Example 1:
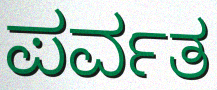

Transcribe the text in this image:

ಪರ್ವತ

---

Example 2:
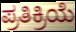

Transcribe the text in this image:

ಪ್ರತಿಕ್ರಿಯೆ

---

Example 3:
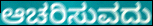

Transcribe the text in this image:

ಆಚರಿಸುವದು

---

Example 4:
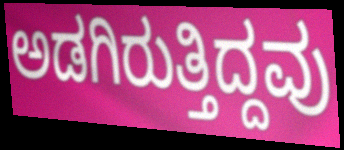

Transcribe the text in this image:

ಅಡಗಿರುತ್ತಿದ್ದವು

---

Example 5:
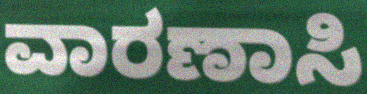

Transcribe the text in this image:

ವಾರಣಾಸಿ